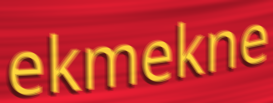
ekmekne